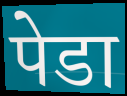
पेडा